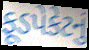
ફૂડપેકેટનું